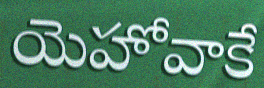
యెహోవాకే